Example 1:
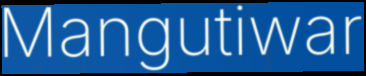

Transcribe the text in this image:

Mangutiwar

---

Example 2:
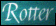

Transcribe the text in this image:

Rotter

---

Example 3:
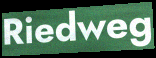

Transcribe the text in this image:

Riedweg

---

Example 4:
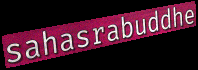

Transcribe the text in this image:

sahasrabuddhe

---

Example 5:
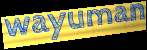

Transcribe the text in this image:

wayuman